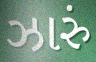
ઝારું